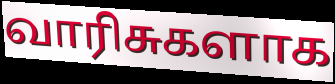
வாரிசுகளாக